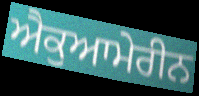
ਐਕੁਆਮੇਰੀਨ